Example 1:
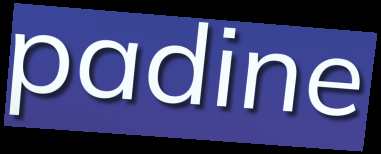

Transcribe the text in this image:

padine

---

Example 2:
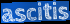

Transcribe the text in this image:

ascitis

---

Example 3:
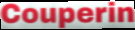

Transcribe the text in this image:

Couperin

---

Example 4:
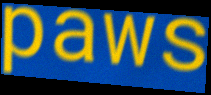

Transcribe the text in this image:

paws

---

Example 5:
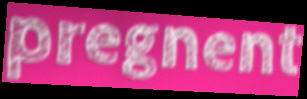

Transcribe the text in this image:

pregnent